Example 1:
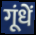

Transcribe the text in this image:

गूंधें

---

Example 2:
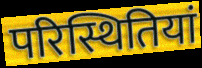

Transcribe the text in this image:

परिस्थितियां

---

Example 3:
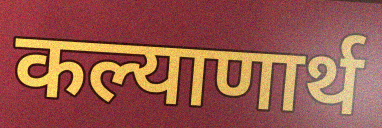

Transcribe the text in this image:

कल्याणार्थ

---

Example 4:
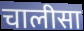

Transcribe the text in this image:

चालीसा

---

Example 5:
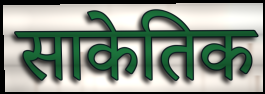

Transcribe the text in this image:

साकेतिक